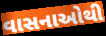
વાસનાઓથી